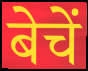
बेचें